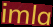
imla